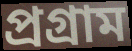
প্ৰগ্ৰাম